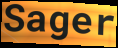
Sager